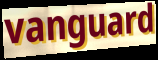
vanguard